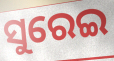
ସୁରେଇ